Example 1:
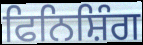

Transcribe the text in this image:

ਫਿਨਿਸ਼ਿੰਗ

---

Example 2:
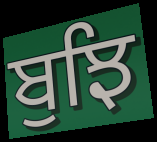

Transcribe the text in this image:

ਬੁਝਿ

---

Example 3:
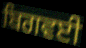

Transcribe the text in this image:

ਬਿਗਵਈ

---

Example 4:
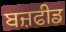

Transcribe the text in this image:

ਬਜ਼ਫੀਡ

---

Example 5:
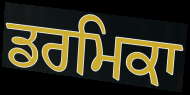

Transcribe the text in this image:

ਡਰਮਿਕਾ